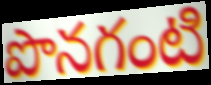
పొనగంటి